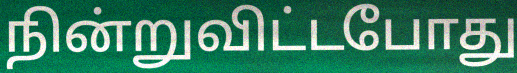
நின்றுவிட்டபோது